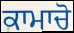
ਕਾਮਾਚੋ